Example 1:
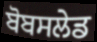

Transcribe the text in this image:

ਬੋਬਸਲੇਡ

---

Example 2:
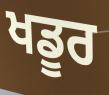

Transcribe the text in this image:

ਖਡੂਰ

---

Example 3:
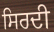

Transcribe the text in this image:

ਸਿਰਦੀ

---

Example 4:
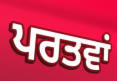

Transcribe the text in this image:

ਪਰਤਵਾਂ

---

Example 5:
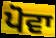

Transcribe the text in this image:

ਪੋਵਾ